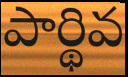
పార్థివ